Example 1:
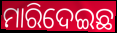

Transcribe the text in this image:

ମାରିଦେଇଛ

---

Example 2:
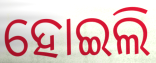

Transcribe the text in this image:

ହୋଇଲି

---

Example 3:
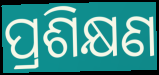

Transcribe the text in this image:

ପ୍ରଶିକ୍ଷଣ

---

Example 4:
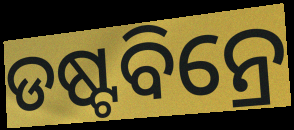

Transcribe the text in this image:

ଡଷ୍ଟବିନ୍ରେ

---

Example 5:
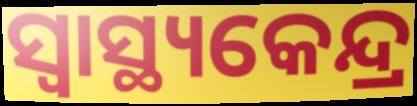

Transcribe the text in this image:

ସ୍ୱାସ୍ଥ୍ୟକେନ୍ଦ୍ର